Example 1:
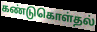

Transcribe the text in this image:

கண்டுகொள்தல்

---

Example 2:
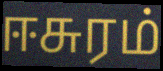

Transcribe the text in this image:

ஈசுரம்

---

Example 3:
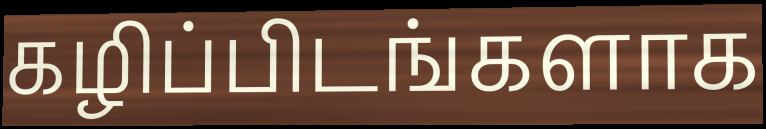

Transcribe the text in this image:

கழிப்பிடங்களாக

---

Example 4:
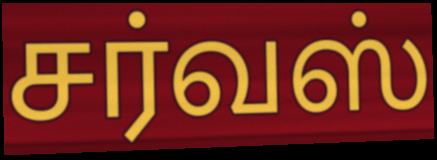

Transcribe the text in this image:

சர்வஸ்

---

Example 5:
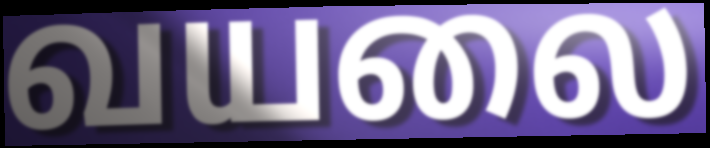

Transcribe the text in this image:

வயலை